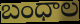
బంధాల